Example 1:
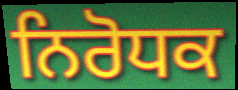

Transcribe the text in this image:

ਨਿਰੋਧਕ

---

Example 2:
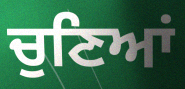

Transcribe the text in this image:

ਚੁਣਿਆਂ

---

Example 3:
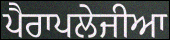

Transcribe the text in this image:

ਪੈਰਾਪਲੇਜੀਆ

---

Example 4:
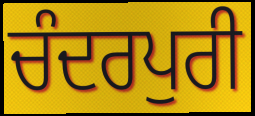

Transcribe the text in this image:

ਚੰਦਰਪੁਰੀ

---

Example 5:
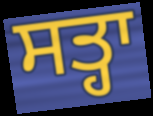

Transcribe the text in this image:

ਸਤ੍ਹਾ